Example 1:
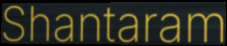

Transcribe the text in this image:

Shantaram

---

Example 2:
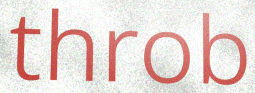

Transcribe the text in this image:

throb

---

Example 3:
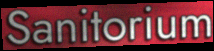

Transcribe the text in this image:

Sanitorium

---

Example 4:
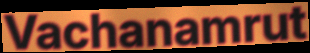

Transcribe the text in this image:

Vachanamrut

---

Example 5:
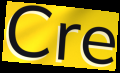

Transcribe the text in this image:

Cre